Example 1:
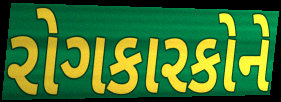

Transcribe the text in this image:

રોગકારકોને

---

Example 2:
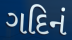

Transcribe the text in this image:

ગદિનં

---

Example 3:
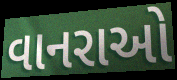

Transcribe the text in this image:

વાનરાઓ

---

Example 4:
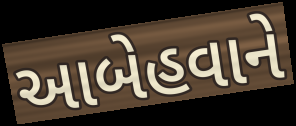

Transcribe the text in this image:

આબેહવાને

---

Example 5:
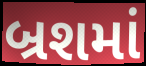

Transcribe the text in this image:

બ્રશમાં